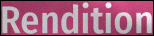
Rendition